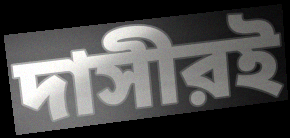
দাসীরই